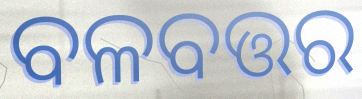
ବଳବତ୍ତର